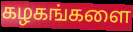
கழகங்களை